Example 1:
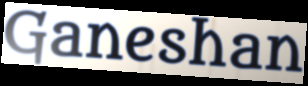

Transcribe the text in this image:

Ganeshan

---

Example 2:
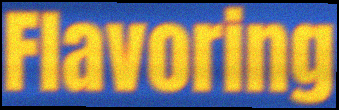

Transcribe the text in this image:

Flavoring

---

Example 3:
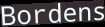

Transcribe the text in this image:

Bordens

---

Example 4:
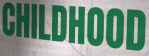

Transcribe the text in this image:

CHILDHOOD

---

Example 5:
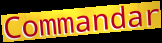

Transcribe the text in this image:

Commandar